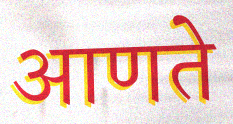
आणते